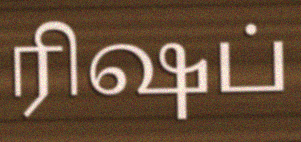
ரிஷப்